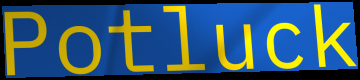
Potluck